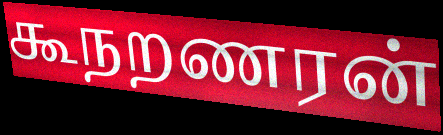
கூநறணரன்